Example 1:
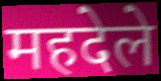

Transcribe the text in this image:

महदेले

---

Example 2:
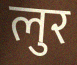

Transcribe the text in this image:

लुर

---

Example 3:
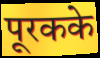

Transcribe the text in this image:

पूरकके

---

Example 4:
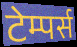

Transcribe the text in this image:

टेम्पर्स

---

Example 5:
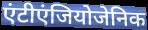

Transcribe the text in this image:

एंटीएंजियोजेनिक